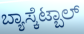
ಬ್ಯಾಸ್ಕೆಟ್ಬಾಲ್